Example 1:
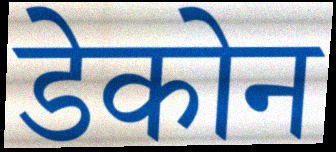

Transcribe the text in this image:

डेकोन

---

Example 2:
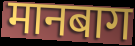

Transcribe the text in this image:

मानबाग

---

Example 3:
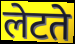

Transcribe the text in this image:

लेटते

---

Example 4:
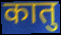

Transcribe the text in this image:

कातु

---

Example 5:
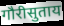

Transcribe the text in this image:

गौरीसुताय